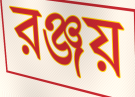
রঞ্জয়